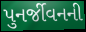
પુનર્જીવનની